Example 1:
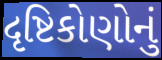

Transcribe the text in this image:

દૃષ્ટિકોણોનું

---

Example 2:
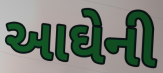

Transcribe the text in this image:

આઘેની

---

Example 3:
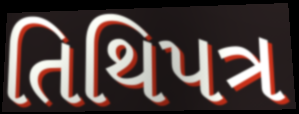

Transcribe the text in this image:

તિથિપત્ર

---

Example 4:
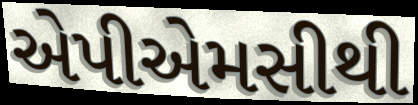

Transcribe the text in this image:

એપીએમસીથી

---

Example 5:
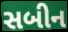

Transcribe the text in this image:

સબીન